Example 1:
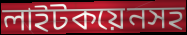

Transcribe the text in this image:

লাইটকয়েনসহ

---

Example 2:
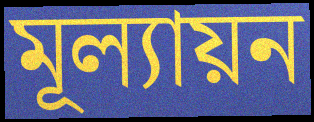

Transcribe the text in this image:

মূল্যায়ন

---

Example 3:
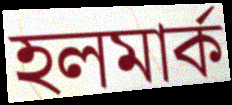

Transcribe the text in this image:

হলমার্ক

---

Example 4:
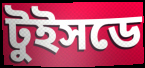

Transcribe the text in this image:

টুইসডে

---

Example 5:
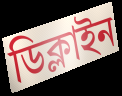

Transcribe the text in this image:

ডিক্লাইন